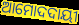
ଆମୋଦଦାୟୀ